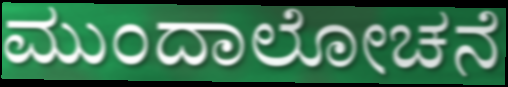
ಮುಂದಾಲೋಚನೆ